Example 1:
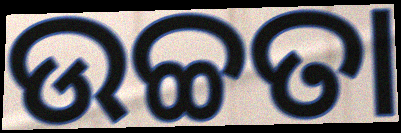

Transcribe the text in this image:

ଉଚ୍ଚତା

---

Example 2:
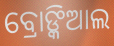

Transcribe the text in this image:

ବ୍ରୋଙ୍କିଆଲ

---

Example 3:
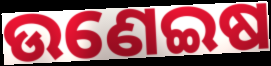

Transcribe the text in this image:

ଉଣେଇଷ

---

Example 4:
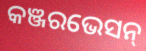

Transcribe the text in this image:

କଞ୍ଜରଭେସନ୍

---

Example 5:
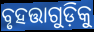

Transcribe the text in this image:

ବୃହତ୍ତାଗୁଡ଼ିକୁ